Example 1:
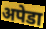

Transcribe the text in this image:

अपेडा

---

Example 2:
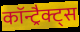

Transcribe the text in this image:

कॉन्ट्रैक्ट्स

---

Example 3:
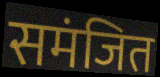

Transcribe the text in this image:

समंजित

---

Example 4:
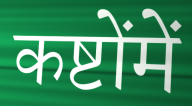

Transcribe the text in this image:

कष्टोंमें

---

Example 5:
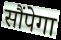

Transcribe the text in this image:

सौंपेगा